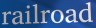
railroad